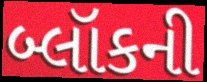
બ્લૉકની